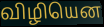
விழியென